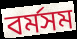
বর্মসম